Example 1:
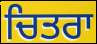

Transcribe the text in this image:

ਚਿਤਰਾ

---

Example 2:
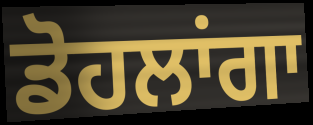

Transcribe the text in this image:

ਡੋਹਲਾਂਗਾ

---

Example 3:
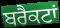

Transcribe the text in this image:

ਬਰੈਕਟਾਂ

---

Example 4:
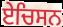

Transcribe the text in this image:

ਏਚਿਸਨ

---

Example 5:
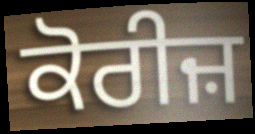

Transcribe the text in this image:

ਕੋਰੀਜ਼